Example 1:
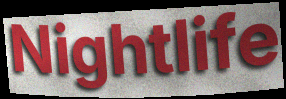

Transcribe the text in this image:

Nightlife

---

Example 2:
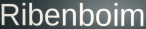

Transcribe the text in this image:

Ribenboim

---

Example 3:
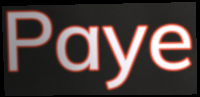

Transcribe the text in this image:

Paye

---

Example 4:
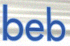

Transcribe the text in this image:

beb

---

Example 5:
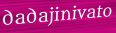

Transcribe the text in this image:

dadajinivato